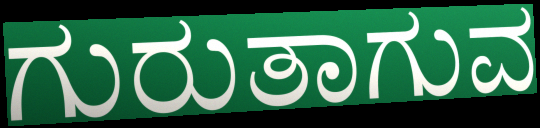
ಗುರುತಾಗುವ